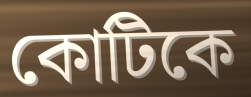
কোটিকে